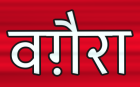
वग़ैरा